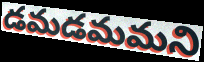
డమడమమని